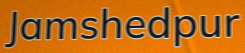
Jamshedpur